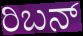
ರಿಬನ್